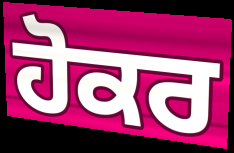
ਹੋਕਰ